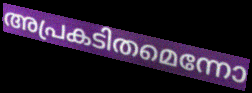
അപ്രകടിതമെന്നോ